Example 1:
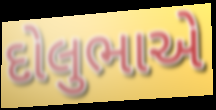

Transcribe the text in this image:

દોલુભાએ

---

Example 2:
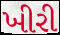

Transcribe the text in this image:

ખીરી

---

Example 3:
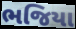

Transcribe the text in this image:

ભજિયા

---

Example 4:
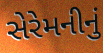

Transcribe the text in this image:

સેરેમનીનું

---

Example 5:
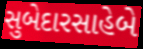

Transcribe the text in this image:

સુબેદારસાહેબે